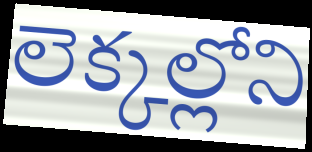
లెక్కల్లోని